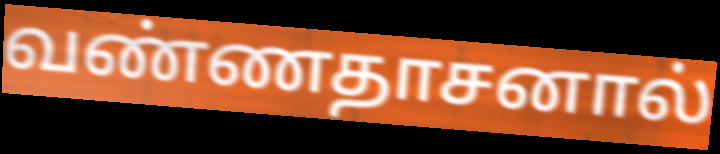
வண்ணதாசனால்